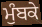
ਮੁੰਬਕੇ